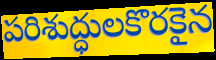
పరిశుద్ధులకొరకైన